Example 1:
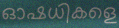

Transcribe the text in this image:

ഓഷധികളെ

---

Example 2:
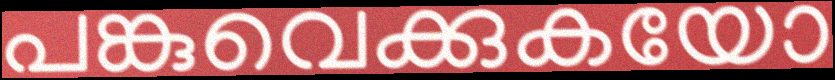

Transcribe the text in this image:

പങ്കുവെക്കുകയോ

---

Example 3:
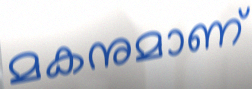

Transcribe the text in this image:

മകനുമാണ്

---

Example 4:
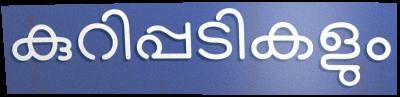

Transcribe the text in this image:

കുറിപ്പടികളും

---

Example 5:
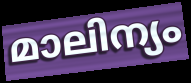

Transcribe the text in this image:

മാലിന്യം